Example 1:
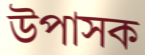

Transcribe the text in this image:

উপাসক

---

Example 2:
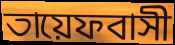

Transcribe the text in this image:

তায়েফবাসী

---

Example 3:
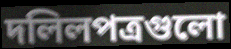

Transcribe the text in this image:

দলিলপত্রগুলো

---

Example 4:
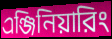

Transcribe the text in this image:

এঞ্জিনিয়ারিং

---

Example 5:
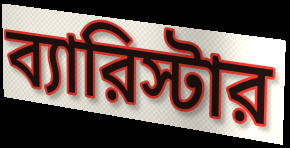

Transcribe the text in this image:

ব্যারিস্টার